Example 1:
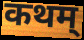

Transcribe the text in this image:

कथम्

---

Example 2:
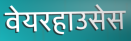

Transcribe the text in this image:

वेयरहाउसेस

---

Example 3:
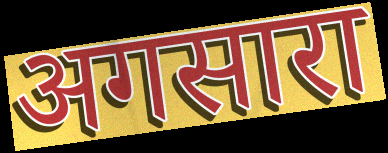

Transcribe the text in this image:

अगसारा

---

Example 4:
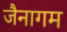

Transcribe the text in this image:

जैनागम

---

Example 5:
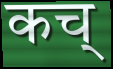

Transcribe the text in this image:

कच्